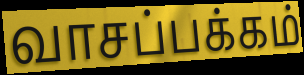
வாசப்பக்கம்